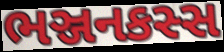
ભઞ્જનકસ્સ